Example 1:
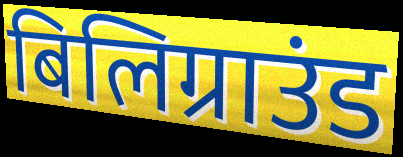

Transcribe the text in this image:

बिलिग्राउंड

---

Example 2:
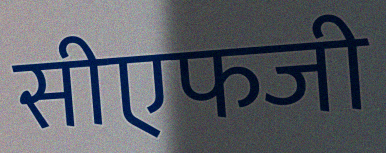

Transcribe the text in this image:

सीएफजी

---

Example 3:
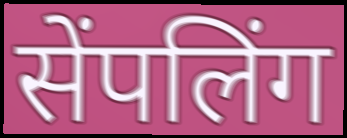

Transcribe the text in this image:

सेंपलिंग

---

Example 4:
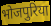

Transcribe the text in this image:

भोजपुरिया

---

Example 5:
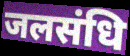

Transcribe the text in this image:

जलसंधि